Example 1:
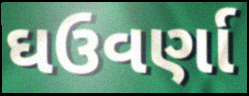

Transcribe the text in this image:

ઘઉવર્ણા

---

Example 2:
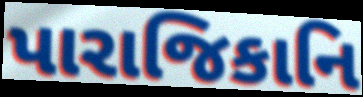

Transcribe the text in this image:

પારાજિકાનિ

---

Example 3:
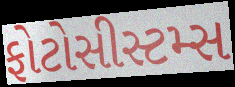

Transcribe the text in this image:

ફોટોસીસ્ટમ્સ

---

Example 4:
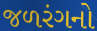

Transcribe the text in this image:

જળરંગનો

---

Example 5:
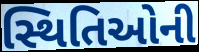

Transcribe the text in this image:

સ્થિતિઓની